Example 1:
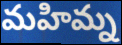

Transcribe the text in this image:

మహిమ్న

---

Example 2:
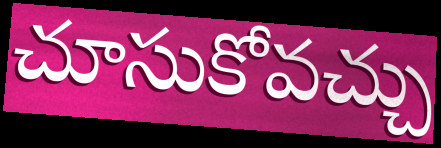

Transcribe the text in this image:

చూసుకోవచ్చు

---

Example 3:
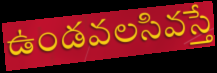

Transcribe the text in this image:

ఉండవలసివస్తే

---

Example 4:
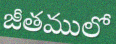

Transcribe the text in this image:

జీతములో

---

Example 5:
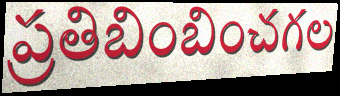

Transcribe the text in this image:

ప్రతిబింబించగల